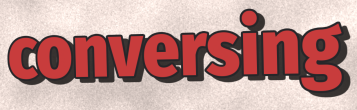
conversing